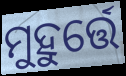
ମୁହୁର୍ତ୍ତେ